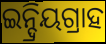
ଇନ୍ଦ୍ରିୟଗ୍ରାହ